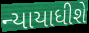
ન્યાયાધીશે